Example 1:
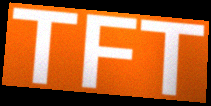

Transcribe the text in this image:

TFT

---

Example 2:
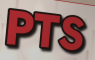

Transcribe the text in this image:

PTS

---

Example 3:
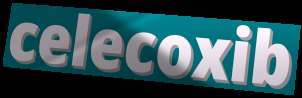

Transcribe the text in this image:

celecoxib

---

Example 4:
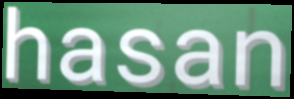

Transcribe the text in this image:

hasan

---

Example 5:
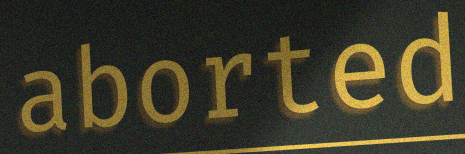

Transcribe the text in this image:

aborted